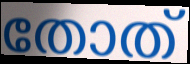
തോത്